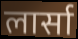
लार्सा